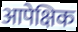
आपेक्षिक